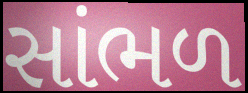
સાંભળ